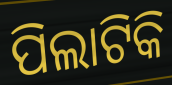
ପିଲାଟିକି